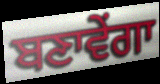
ਬਣਾਵੇਂਗਾ